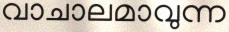
വാചാലമാവുന്ന